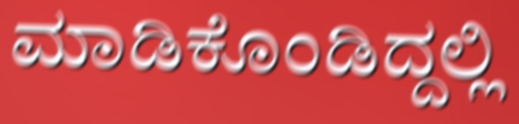
ಮಾಡಿಕೊಂಡಿದ್ದಲ್ಲಿ